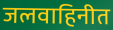
जलवाहिनीत